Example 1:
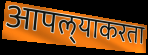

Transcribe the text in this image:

आपल्याकरता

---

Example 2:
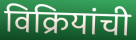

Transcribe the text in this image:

विक्रियांची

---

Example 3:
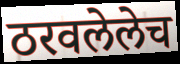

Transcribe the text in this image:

ठरवलेलेच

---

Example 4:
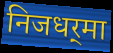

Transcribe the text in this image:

निजधर्मा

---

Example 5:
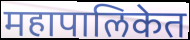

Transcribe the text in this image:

महापालिकेत